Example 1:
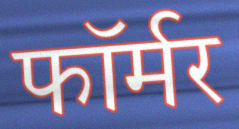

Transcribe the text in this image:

फॉर्मर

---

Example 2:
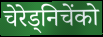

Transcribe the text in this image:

चेरेड्निचेंको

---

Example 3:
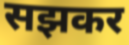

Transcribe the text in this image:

सझकर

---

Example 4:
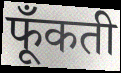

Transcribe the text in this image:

फूँकती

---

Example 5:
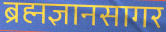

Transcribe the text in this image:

ब्रह्मज्ञानसागर